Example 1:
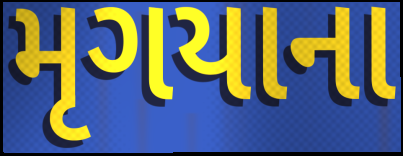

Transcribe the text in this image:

મૃગયાના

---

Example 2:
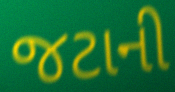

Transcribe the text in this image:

જટાની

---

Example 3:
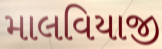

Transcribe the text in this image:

માલવિયાજી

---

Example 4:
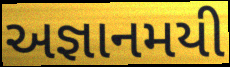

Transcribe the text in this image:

અજ્ઞાનમયી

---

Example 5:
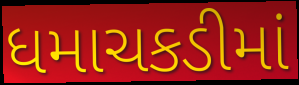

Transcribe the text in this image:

ધમાચકડીમાં